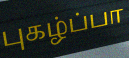
புகழ்ப்பா